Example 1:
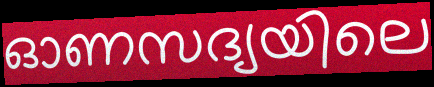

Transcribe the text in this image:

ഓണസദ്യയിലെ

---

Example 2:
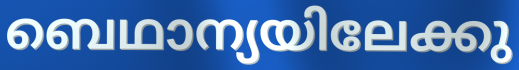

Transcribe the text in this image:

ബെഥാന്യയിലേക്കു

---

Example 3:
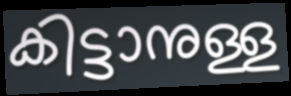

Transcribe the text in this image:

കിട്ടാനുള്ള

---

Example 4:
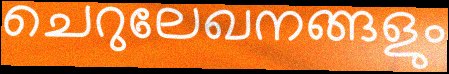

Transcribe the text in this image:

ചെറുലേഖനങ്ങളും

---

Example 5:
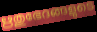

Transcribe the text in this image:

ഋതുഭേദങ്ങളുടെ